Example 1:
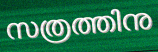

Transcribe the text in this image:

സത്രത്തിനു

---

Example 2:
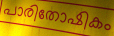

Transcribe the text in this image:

പാരിതോഷികം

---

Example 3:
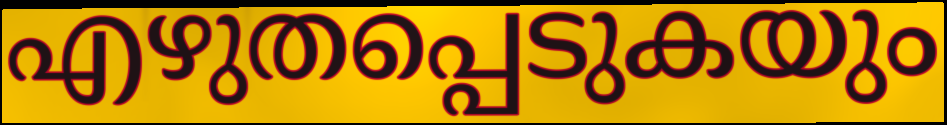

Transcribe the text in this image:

എഴുതപ്പെടുകയും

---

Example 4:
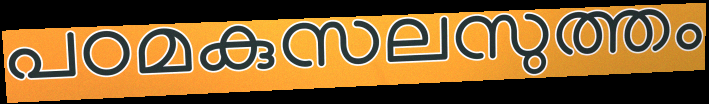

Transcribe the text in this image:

പഠമകുസലസുത്തം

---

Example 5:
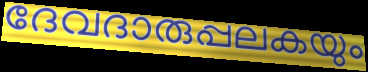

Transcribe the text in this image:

ദേവദാരുപ്പലകയും